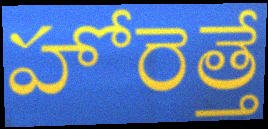
హోరెత్తే